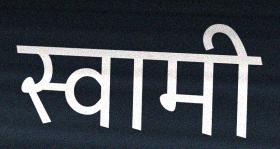
स्‍वामी